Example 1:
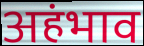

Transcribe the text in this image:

अहंभाव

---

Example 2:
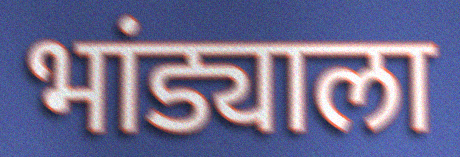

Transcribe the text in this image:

भांड्याला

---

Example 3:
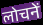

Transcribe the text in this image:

लोचनें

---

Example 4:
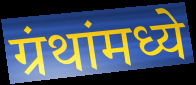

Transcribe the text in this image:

ग्रंथांमध्ये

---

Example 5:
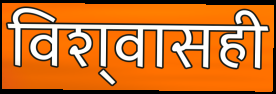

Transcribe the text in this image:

विश्वासही